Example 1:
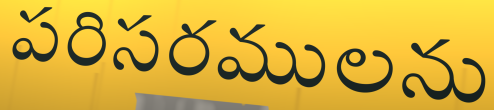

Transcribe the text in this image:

పరిసరములను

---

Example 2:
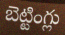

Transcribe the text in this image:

బెట్టింగ్లు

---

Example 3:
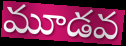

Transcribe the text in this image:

మూడవ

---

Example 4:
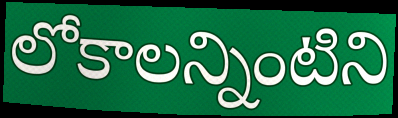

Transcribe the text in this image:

లోకాలన్నింటిని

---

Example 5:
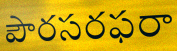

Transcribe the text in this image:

పౌరసరఫరా